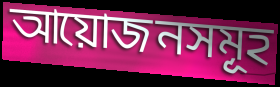
আয়োজনসমূহ